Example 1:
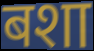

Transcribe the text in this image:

बशा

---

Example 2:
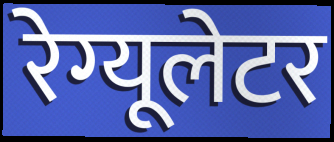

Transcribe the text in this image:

रेग्यूलेटर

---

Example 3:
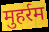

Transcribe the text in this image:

मुहर्रम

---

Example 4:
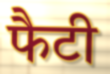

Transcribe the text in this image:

फैटी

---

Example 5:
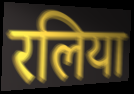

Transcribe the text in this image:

रलिया